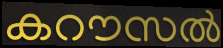
കറൗസൽ